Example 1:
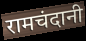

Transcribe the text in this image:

रामचंदानी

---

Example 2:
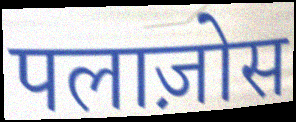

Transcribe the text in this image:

पलाज़ोस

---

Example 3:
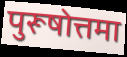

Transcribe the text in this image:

पुरूषोत्तमा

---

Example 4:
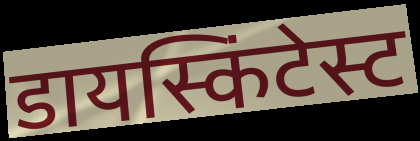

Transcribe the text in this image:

डायस्किंटेस्ट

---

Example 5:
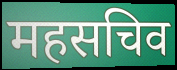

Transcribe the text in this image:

महसचिव